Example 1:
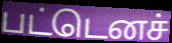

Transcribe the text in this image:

பட்டெனச்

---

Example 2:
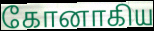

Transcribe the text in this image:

கோனாகிய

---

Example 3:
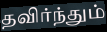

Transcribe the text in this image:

தவிர்ந்தும்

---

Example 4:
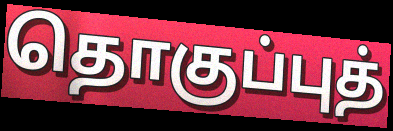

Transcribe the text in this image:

தொகுப்புத்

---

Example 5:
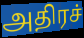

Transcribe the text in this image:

அதிரச்